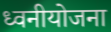
ध्वनीयोजना